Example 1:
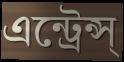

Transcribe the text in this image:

এন্ট্রেন্স্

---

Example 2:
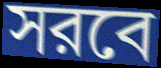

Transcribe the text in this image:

সরবে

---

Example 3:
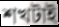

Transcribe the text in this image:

শখটাই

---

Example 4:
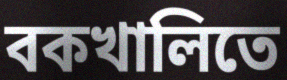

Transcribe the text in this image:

বকখালিতে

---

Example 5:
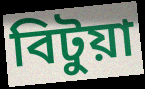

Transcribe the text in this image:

বিটুয়া